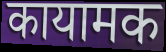
कायामक